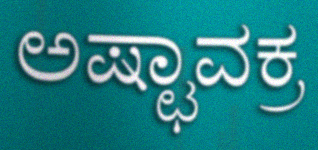
ಅಷ್ಟಾವಕ್ರ